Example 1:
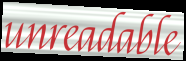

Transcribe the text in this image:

unreadable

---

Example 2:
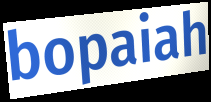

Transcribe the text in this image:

bopaiah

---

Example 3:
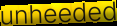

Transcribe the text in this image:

unheeded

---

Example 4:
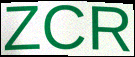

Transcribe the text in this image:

ZCR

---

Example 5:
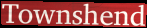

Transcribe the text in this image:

Townshend